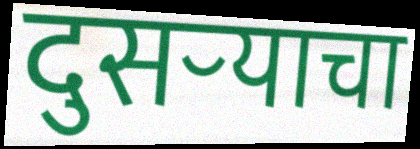
दुसऱ्याचा